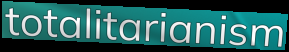
totalitarianism